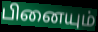
பினையும்